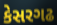
કેસરગઢ